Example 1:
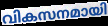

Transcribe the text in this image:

വികസനമായി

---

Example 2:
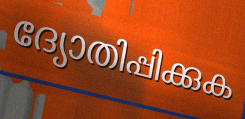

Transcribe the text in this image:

ദ്യോതിപ്പിക്കുക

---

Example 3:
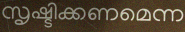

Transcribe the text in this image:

സൃഷ്ടിക്കണമെന്ന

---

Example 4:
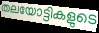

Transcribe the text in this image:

തലയോട്ടികളുടെ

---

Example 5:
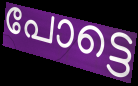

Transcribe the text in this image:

പോട്ടെ